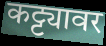
कट्ट्यावर